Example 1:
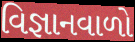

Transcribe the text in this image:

વિજ્ઞાનવાળો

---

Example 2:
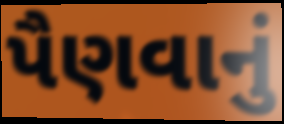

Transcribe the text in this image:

પૈણવાનું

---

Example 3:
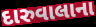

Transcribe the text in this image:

દારુવાલાના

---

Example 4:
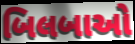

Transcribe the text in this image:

બિલબાઓ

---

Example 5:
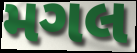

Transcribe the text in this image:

મગલ